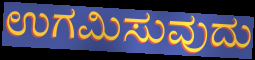
ಉಗಮಿಸುವುದು